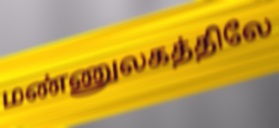
மண்ணுலகத்திலே